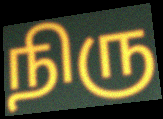
நிரு